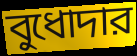
বুধোদার